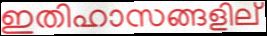
ഇതിഹാസങ്ങളില്